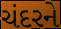
ચંદરને